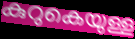
കുറുകെയുള്ള